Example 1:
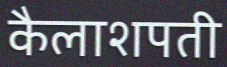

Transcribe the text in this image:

कैलाशपती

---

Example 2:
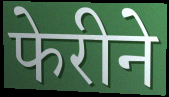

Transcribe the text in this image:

फेरीने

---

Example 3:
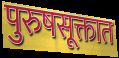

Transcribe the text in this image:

पुरुषसूक्तात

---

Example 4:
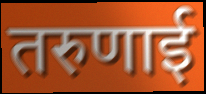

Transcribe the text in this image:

तरुणाई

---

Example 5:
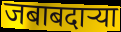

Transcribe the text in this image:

जबाबदाऱ्या